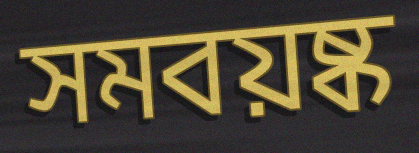
সমবয়ষ্ক